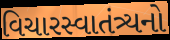
વિચારસ્વાતંત્ર્યનો